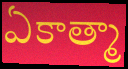
ఏకాత్మా